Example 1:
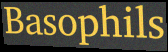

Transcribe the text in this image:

Basophils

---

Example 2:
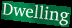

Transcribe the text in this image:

Dwelling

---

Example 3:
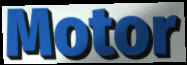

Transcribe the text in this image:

Motor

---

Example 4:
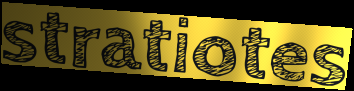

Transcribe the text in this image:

stratiotes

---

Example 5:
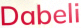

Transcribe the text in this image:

Dabeli